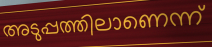
അടുപ്പത്തിലാണെന്ന്